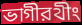
ভাগীরথীং